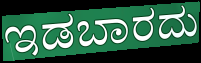
ಇಡಬಾರದು